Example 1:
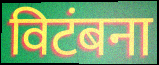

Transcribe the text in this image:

विटंबना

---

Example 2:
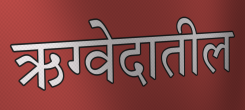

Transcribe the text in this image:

ऋग्वेदातील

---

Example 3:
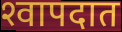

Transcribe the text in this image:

श्वापदात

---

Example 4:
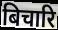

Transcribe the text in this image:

बिचारि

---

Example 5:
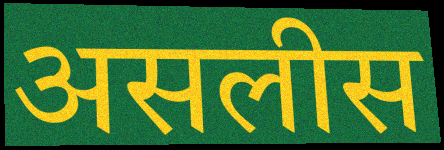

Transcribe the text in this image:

असलीस